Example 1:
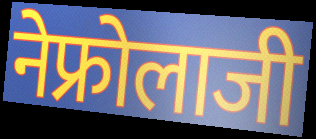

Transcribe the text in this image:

नेफ्रोलाजी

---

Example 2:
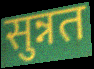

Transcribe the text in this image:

सुन्नत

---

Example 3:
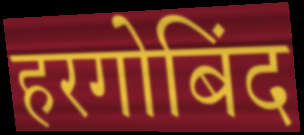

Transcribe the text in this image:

हरगोबिंद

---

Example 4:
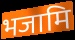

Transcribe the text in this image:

भजामि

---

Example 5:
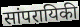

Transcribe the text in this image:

सांपरायिकी